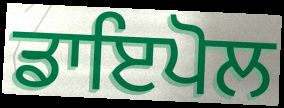
ਡਾਇਪੋਲ